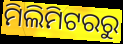
ମିଲିମିଟରରୁ